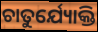
ଚାତୁର୍ଯ୍ୟୋକ୍ତି